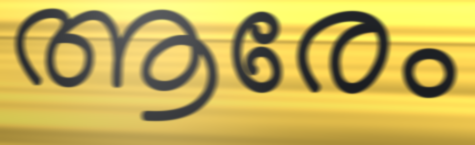
ആരേം